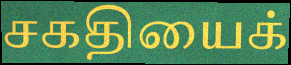
சகதியைக்